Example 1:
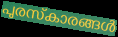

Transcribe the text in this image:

പുരസ്‌കാരങ്ങൾ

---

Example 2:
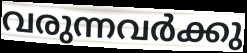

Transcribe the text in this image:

വരുന്നവർക്കു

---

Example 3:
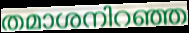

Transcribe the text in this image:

തമാശനിറഞ്ഞ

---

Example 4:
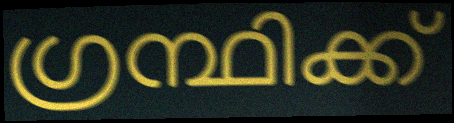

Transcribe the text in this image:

ഗ്രന്ഥിക്ക്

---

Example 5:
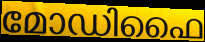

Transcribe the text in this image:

മോഡിഫൈ